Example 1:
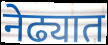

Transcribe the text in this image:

नेढ्यात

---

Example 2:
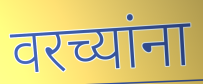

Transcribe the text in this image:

वरच्यांना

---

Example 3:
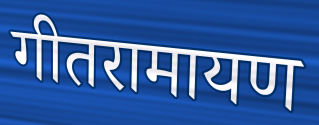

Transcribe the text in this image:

गीतरामायण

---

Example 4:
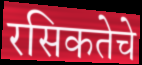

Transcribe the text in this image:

रसिकतेचे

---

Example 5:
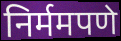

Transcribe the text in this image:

निर्ममपणे